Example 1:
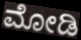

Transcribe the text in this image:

ಮೋಡಿ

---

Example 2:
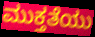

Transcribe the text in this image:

ಮುಕ್ತತೆಯು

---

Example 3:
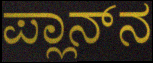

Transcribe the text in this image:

ಪ್ಲಾನ್‌ನ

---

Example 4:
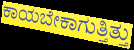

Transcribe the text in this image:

ಕಾಯಬೇಕಾಗುತ್ತಿತ್ತು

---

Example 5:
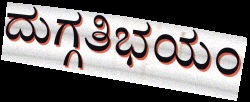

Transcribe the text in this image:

ದುಗ್ಗತಿಭಯಂ